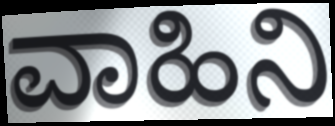
ವಾಹಿನಿ